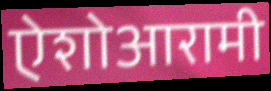
ऐशोआरामी